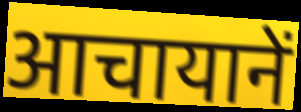
आचायानें